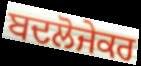
ਬਦਲੋਜੇਕਰ